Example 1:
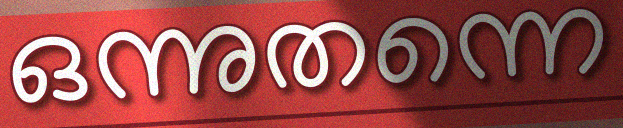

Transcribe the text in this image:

ഒന്നുതന്നെ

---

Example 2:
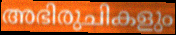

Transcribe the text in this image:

അഭിരുചികളും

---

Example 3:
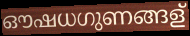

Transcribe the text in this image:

ഔഷധഗുണങ്ങള്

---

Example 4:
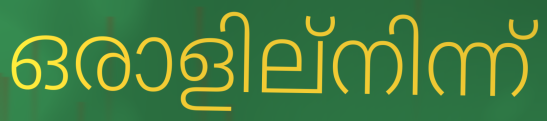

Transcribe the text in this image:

ഒരാളില്നിന്ന്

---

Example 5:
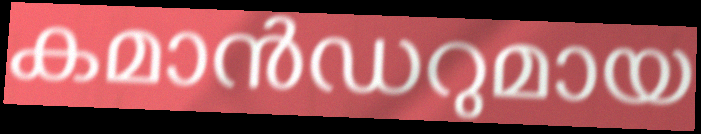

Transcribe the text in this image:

കമാൻഡറുമായ